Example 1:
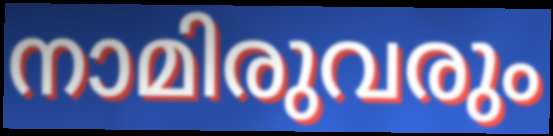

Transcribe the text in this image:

നാമിരുവരും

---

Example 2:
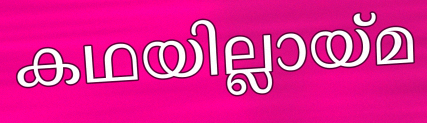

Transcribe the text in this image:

കഥയില്ലായ്മ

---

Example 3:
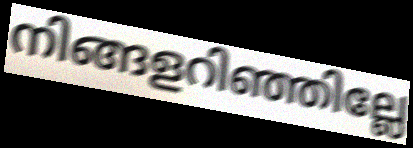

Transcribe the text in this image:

നിങ്ങളറിഞ്ഞില്ലേ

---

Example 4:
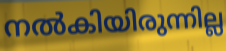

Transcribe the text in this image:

നൽകിയിരുന്നില്ല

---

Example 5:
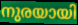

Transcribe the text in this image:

നുരയായി